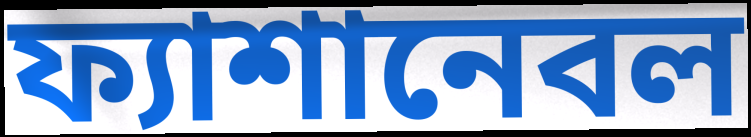
ফ্যাশানেবল